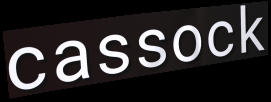
cassock